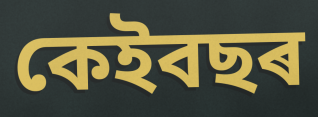
কেইবছৰ